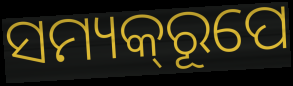
ସମ୍ୟକ୍‌ରୂପେ